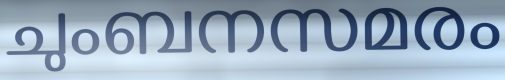
ചുംബനസമരം